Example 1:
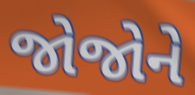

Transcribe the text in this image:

જોજોને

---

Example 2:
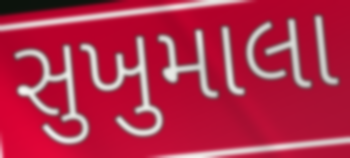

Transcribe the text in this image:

સુખુમાલા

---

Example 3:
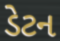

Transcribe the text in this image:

ડેટન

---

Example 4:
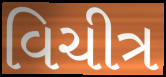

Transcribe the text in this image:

વિચીત્ર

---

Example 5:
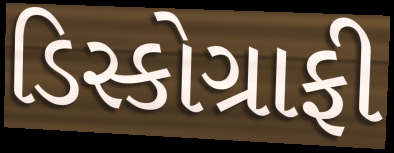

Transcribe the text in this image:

ડિસ્કોગ્રાફી